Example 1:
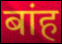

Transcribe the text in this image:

बांह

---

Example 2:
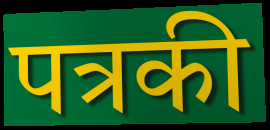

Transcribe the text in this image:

पत्रकी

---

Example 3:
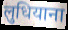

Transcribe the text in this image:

लुधियाना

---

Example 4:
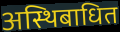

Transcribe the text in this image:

अस्थिबाधित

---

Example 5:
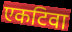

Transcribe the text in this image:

एकटिवा